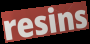
resins